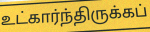
உட்கார்ந்திருக்கப்